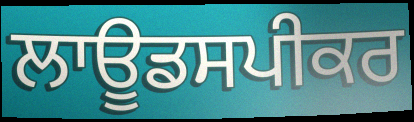
ਲਾਊਡਸਪੀਕਰ